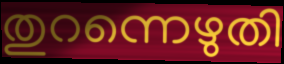
തുറന്നെഴുതി